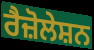
ਰੈਜ਼ੋਲੇਸ਼ਨ